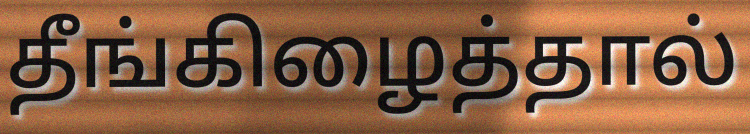
தீங்கிழைத்தால்